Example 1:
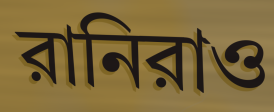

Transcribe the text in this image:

রানিরাও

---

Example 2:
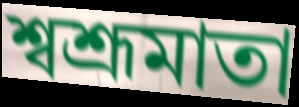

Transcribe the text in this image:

শ্বশ্রূমাতা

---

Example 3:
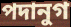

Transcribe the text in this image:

পদানুগ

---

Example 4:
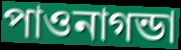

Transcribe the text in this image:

পাওনাগন্ডা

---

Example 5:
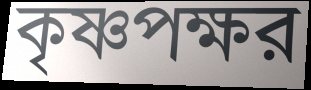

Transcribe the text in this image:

কৃষ্ণপক্ষর